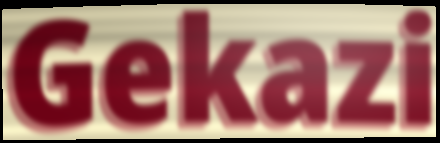
Gekazi